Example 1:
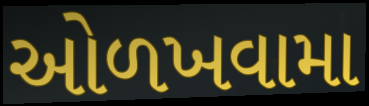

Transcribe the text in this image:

ઓળખવામા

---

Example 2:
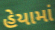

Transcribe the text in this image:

હેયામાં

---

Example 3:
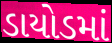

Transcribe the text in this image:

ડાયોડમાં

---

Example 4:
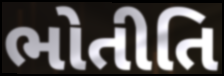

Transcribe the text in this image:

ભોતીતિ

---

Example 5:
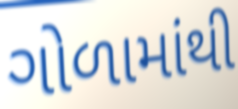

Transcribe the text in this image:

ગોળામાંથી